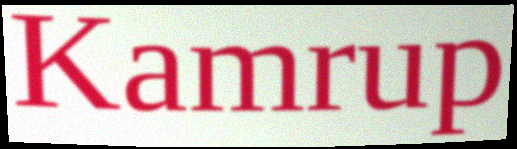
Kamrup